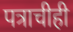
पत्राचीही